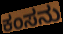
ಕಂಸನು